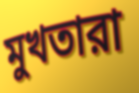
মুখতারা